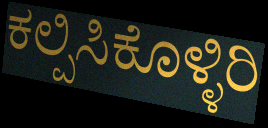
ಕಲ್ಪಿಸಿಕೊಳ್ಳಿರಿ